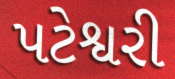
પટેશ્વરી